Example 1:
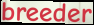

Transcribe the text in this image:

breeder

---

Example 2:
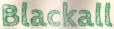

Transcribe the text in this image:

Blackall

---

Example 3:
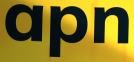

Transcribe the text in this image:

apn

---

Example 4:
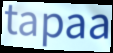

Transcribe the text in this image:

tapaa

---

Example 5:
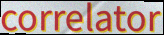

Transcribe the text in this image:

correlator